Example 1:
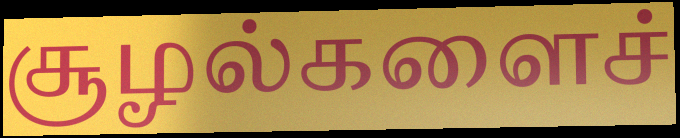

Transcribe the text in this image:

சூழல்களைச்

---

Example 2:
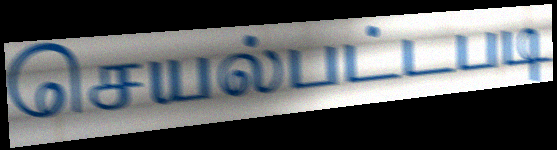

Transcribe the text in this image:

செயல்பட்டபடி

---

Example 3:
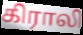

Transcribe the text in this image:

கிராலி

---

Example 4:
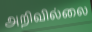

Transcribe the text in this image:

அறிவில்லை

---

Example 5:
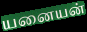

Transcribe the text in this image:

யனையன்